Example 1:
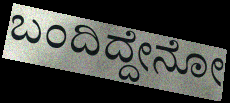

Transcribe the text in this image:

ಬಂದಿದ್ದೇನೋ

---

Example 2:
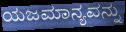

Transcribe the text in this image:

ಯಜಮಾನ್ಯವನ್ನು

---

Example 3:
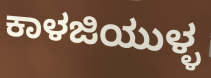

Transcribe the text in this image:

ಕಾಳಜಿಯುಳ್ಳ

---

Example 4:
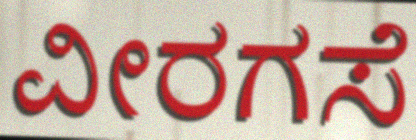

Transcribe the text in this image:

ವೀರಗಸೆ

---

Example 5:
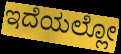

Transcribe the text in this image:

ಇದೆಯಲ್ಲೋ